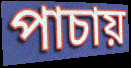
পাচায়